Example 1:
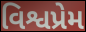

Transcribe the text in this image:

વિશ્વપ્રેમ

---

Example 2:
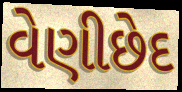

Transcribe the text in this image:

વેણીછેદ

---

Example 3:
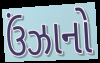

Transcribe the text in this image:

ઉંઝાનો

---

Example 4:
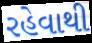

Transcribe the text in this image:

રહેવાથી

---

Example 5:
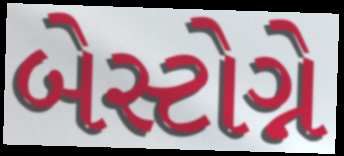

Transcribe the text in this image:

બેસ્ટોગ્ને